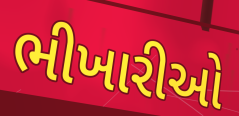
ભીખારીઓ